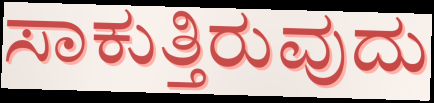
ಸಾಕುತ್ತಿರುವುದು